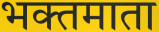
भक्तमाता